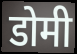
डोमी